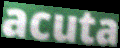
acuta